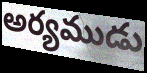
అర్యముడు